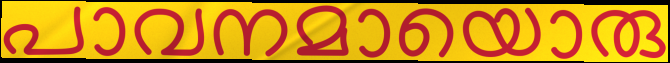
പാവനമായൊരു